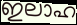
ഇലാഹ